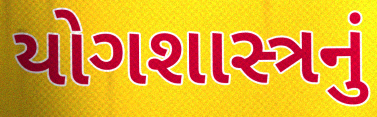
યોગશાસ્ત્રનું